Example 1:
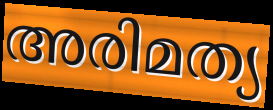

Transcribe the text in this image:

അരിമത്യ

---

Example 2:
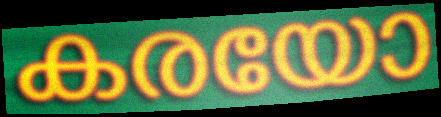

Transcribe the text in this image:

കരയോ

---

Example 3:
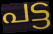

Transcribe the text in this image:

പട്ട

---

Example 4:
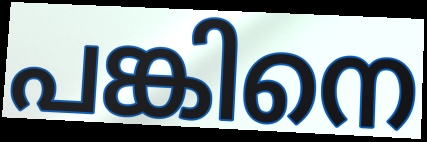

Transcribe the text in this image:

പങ്കിനെ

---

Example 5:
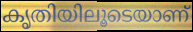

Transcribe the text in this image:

കൃതിയിലൂടെയാണ്